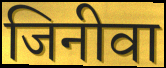
जिनीवा